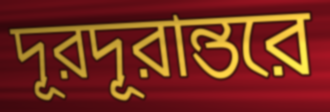
দূরদূরান্তরে